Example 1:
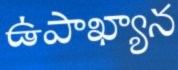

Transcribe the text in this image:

ఉపాఖ్యాన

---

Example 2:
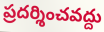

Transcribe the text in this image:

ప్రదర్శించవద్దు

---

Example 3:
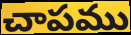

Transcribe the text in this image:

చాపము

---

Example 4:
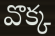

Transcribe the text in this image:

వొక్క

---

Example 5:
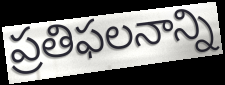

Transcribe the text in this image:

ప్రతిఫలనాన్ని